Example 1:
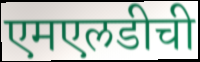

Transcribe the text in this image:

एमएलडीची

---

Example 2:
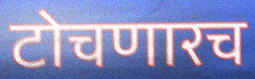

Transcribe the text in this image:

टोचणारच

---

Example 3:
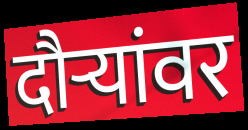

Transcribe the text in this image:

दौऱ्यांवर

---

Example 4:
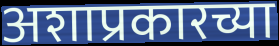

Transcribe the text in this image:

अशाप्रकारच्या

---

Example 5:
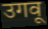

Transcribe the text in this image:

उगवू